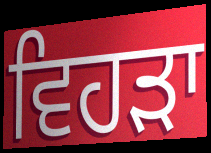
ਵਿਹੜਾ